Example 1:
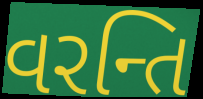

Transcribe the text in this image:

વરન્તિ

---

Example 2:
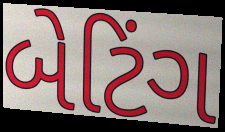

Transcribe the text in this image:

બેટિંગ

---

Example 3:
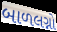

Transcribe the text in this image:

બાળલગ્નો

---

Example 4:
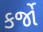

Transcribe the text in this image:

કર્જો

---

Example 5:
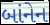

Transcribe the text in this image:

બાંનેન